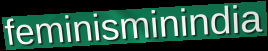
feminisminindia